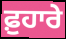
ਫ਼ੁਹਾਰੇ